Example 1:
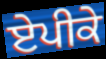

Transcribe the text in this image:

ਏਪੀਕੇ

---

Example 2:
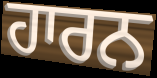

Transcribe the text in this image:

ਹਾਰਨ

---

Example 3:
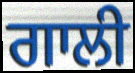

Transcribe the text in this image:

ਗਾਲੀ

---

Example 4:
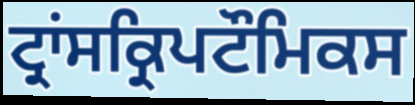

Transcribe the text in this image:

ਟ੍ਰਾਂਸਕ੍ਰਿਪਟੌਮਿਕਸ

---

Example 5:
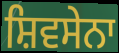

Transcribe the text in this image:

ਸ਼ਿਵਸੇਨਾ